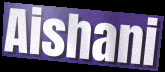
Aishani